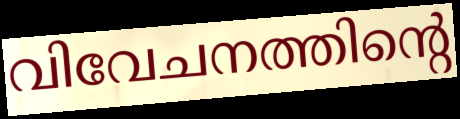
വിവേചനത്തിന്റെ